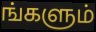
ங்களும்